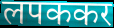
लपककर